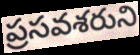
ప్రసవశరుని